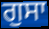
ਗੁਸਾ